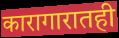
कारागारातही